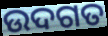
ଉଦଗତ